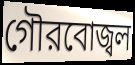
গৌরবোজ্বল